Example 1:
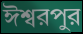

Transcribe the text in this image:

ঈশ্বরপুর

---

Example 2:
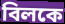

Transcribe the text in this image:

বিলকে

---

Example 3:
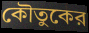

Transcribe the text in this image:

কৌতুকের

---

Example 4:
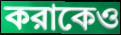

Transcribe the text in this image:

করাকেও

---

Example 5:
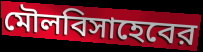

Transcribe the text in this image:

মৌলবিসাহেবের